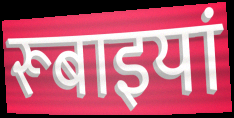
रूबाइयां